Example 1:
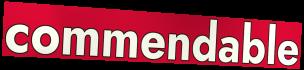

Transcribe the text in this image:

commendable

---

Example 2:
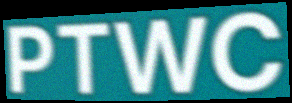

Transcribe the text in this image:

PTWC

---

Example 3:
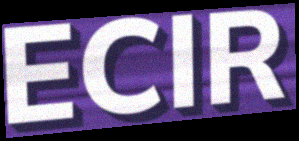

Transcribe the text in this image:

ECIR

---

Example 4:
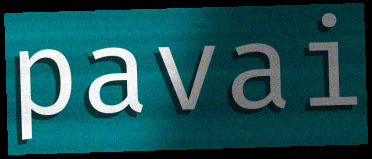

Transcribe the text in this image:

pavai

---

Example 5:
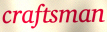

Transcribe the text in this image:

craftsman